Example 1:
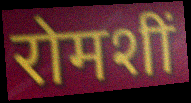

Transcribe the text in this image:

रोमशीं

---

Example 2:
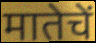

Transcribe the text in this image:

मातेचें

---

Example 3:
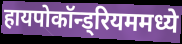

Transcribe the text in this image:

हायपोकॉन्ड्रियममध्ये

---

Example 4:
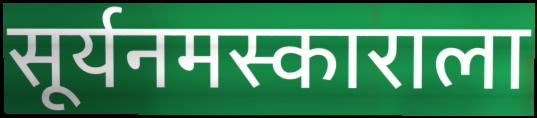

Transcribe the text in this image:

सूर्यनमस्काराला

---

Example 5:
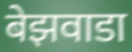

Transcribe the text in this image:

बेझवाडा